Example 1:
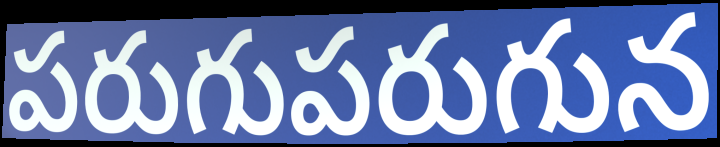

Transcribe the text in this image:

పరుగుపరుగున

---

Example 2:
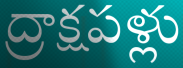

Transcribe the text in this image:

ద్రాక్షపళ్లు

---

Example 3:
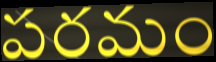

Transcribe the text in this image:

పరమం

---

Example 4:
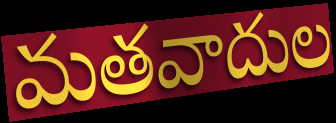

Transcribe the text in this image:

మతవాదుల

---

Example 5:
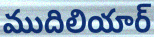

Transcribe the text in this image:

ముదిలియార్